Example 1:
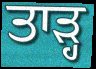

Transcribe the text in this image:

ਤਾੜ੍ਹ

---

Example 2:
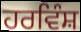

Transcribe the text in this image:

ਹਰਵਿੰਸ਼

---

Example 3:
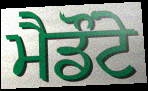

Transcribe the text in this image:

ਮੈਡੌਂਟੇ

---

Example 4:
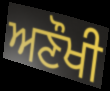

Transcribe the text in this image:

ਅਣੌਖੀ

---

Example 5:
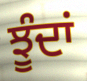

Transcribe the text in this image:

ਝੂੰਦਾਂ